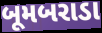
બૂમબરાડા